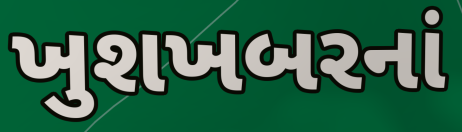
ખુશખબરનાં